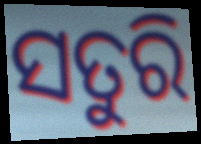
ସତୁରି